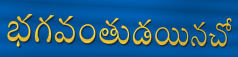
భగవంతుడయినచో